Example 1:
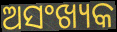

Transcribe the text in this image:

ଅସଂଖ୍ୟକ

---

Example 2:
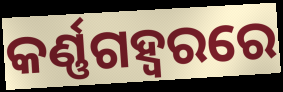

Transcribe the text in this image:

କର୍ଣ୍ଣଗହ୍ଵରରେ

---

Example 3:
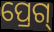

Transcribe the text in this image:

ପ୍ରେଗ୍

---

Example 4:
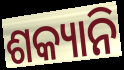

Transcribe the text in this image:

ଶକ୍ୟାନି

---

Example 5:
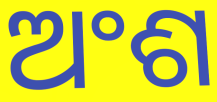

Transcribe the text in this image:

ଅଂଶ